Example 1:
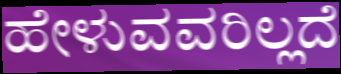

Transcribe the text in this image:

ಹೇಳುವವರಿಲ್ಲದೆ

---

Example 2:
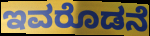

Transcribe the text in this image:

ಇವರೊಡನೆ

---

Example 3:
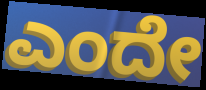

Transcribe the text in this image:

ಎಂದೇ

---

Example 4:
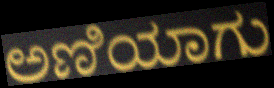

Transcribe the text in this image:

ಅಣಿಯಾಗು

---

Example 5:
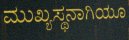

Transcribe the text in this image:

ಮುಖ್ಯಸ್ಥನಾಗಿಯೂ